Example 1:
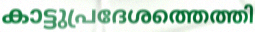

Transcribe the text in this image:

കാട്ടുപ്രദേശത്തെത്തി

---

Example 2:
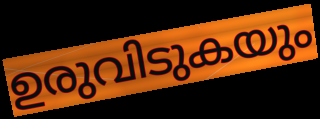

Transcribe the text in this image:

ഉരുവിടുകയും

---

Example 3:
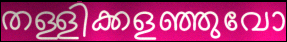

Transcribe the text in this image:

തള്ളിക്കളഞ്ഞുവോ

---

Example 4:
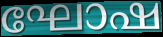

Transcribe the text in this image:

ഘോഷ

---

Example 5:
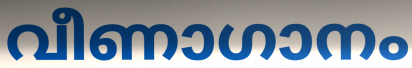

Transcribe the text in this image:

വീണാഗാനം